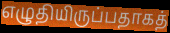
எழுதியிருப்பதாகத்